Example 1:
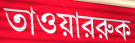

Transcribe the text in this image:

তাওয়াররুক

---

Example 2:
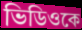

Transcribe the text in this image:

ভিডিওকে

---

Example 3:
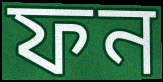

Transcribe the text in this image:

ফন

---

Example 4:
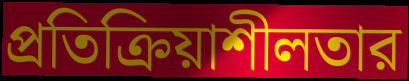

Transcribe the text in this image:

প্রতিক্রিয়াশীলতার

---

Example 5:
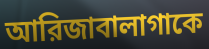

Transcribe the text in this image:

আরিজাবালাগাকে